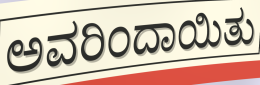
ಅವರಿಂದಾಯಿತು